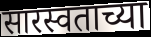
सारस्वताच्या